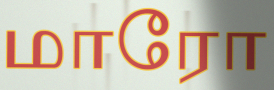
மாரோ